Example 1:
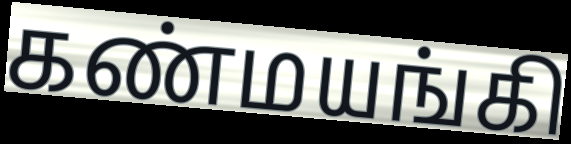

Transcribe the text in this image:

கண்மயங்கி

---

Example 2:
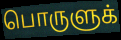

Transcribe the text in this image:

பொருளுக்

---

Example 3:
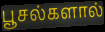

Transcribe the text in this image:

பூசல்களால்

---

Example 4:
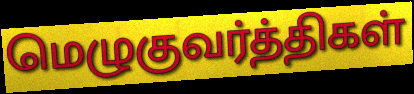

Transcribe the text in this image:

மெழுகுவர்த்திகள்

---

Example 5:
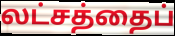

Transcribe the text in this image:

லட்சத்தைப்